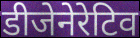
डीजेनेरेटिव